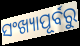
ସଂଖ୍ୟାପୂର୍ବରୁ